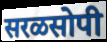
सरळसोपी